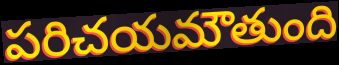
పరిచయమౌతుంది